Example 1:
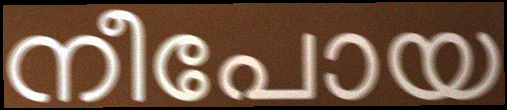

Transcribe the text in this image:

നീപോയ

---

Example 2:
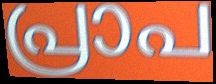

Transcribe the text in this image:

പ്രാപ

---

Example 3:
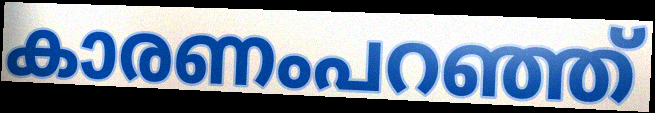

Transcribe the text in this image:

കാരണംപറഞ്ഞ്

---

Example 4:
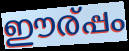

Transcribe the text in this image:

ഈര്പ്പം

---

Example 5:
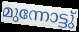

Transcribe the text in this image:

മുന്നോട്ടു്